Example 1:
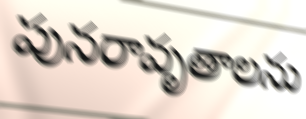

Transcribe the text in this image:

పునరావృతాలను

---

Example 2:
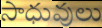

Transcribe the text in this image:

సాధువులు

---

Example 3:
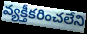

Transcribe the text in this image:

వ్యక్తీకరించలేని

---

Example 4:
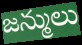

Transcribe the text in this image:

జన్ములు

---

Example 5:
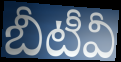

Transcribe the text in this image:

బీటీవీ